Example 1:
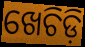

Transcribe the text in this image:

ଖେଚିଡ଼ି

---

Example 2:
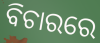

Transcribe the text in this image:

ବିଚାରରେ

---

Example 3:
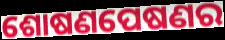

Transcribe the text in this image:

ଶୋଷଣପେଷଣର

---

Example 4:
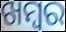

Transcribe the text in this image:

ଖମ୍ବର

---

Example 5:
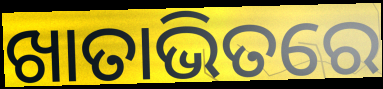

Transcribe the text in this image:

ଖାତାଭିତରେ